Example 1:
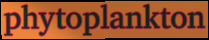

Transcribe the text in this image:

phytoplankton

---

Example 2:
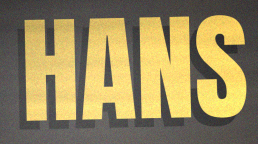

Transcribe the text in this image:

HANS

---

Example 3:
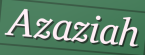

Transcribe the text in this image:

Azaziah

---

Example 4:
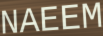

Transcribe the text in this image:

NAEEM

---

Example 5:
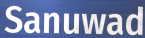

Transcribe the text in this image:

Sanuwad